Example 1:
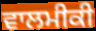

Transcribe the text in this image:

ਵਾਲਮੀਕੀ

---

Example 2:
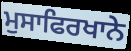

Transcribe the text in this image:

ਮੁਸਾਫਿਰਖਾਨੇ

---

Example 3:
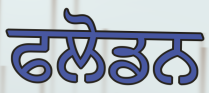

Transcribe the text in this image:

ਫਲੋਡਨ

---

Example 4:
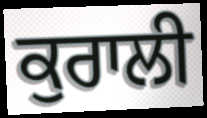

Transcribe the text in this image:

ਕੁਰਾਲੀ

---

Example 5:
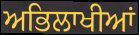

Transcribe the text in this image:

ਅਭਿਲਾਖੀਆਂ